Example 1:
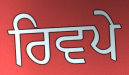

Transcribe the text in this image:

ਰਿਵਪੇ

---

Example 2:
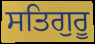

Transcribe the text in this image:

ਸਤਿਗੁਰੂ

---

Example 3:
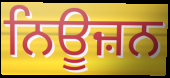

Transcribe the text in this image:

ਨਿਊਜ਼ਨ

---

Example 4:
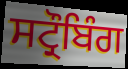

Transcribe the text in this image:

ਸਟ੍ਰੌਬਿੰਗ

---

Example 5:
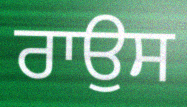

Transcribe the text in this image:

ਰਾਉਸ